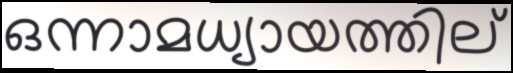
ഒന്നാമധ്യായത്തില്